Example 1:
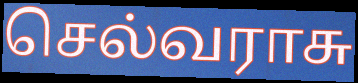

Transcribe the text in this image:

செல்வராசு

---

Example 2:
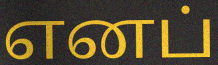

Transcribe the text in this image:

எனப்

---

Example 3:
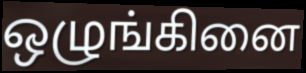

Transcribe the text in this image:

ஒழுங்கினை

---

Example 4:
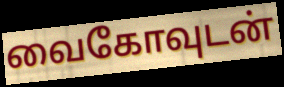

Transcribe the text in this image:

வைகோவுடன்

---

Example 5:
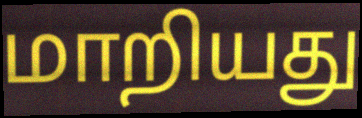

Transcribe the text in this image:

மாறியது